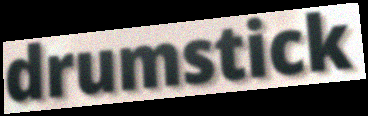
drumstick